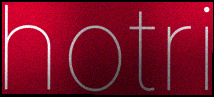
hotri